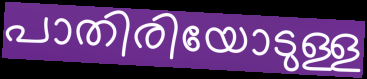
പാതിരിയോടുള്ള